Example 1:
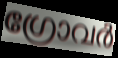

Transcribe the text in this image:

ഗ്രോവർ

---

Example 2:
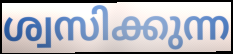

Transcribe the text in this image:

ശ്വസിക്കുന്ന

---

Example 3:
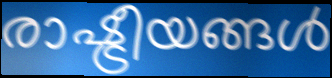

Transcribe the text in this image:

രാഷ്ട്രീയങ്ങൾ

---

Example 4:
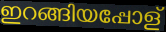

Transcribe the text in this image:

ഇറങ്ങിയപ്പോള്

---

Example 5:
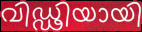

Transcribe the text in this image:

വിഡ്ഢിയായി